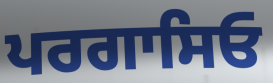
ਪਰਗਾਸਿਓ